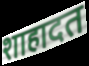
शाहादत